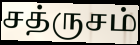
சத்ருசம்